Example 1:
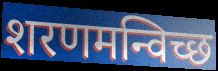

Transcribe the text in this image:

शरणमन्विच्छ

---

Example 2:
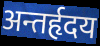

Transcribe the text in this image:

अन्तर्हृदय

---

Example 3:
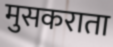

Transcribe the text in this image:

मुसकराता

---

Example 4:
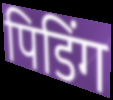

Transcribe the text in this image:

पिडिंग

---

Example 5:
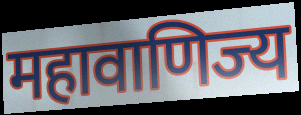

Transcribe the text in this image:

महावाणिज्‍य